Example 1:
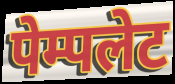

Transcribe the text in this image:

पेम्पलेट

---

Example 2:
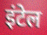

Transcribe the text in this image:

इंटेल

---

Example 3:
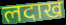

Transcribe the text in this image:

लदाख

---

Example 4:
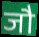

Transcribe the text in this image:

जौ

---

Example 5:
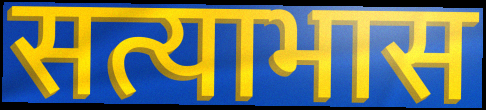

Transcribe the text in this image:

सत्याभास